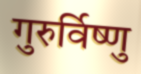
गुरुर्विष्णु